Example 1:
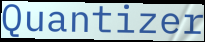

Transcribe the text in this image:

Quantizer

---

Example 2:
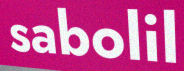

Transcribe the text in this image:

sabolil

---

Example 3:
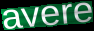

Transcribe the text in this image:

avere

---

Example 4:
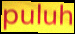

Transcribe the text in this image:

puluh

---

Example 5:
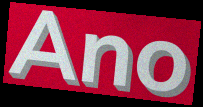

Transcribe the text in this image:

Ano